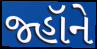
જ્હૉને